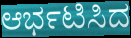
ಆರ್ಭಟಿಸಿದ